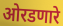
ओरडणारे